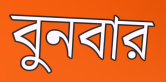
বুনবার